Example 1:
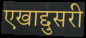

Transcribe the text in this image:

एखाद्दुसरी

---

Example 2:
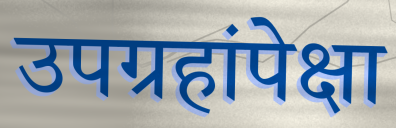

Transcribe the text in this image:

उपग्रहांपेक्षा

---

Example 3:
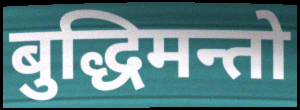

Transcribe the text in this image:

बुद्धिमन्तो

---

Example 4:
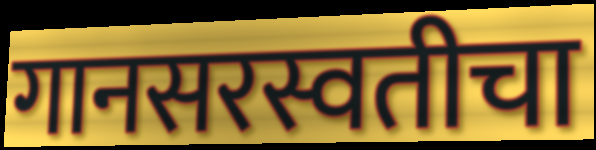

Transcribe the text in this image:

गानसरस्वतीचा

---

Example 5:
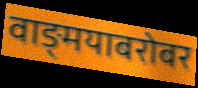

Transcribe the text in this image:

वाङ्मयाबरोबर